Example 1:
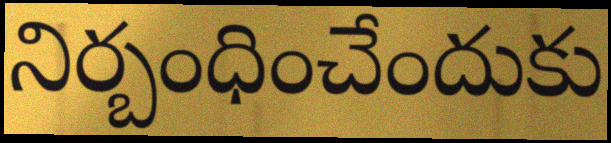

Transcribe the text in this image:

నిర్బంధించేందుకు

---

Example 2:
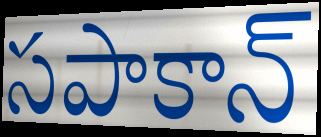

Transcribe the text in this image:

సపాకాన్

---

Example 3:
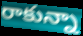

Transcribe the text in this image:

రాకున్నా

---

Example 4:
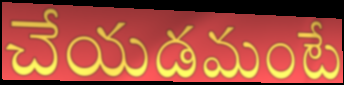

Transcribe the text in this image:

చేయడమంటే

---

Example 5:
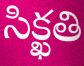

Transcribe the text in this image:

సిక్ఖతి